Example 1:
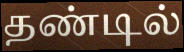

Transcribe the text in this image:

தண்டில்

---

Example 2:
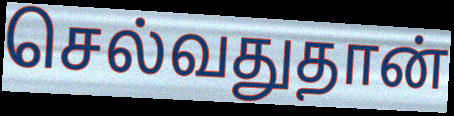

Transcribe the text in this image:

செல்வதுதான்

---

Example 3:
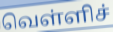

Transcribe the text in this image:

வெள்ளிச்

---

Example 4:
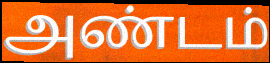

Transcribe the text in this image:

அண்டம்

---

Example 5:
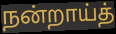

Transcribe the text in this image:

நன்றாய்த்